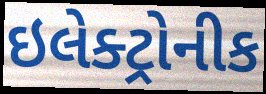
ઇલેક્ટ્રોનીક